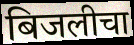
बिजलीचा